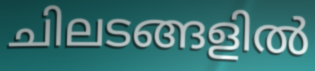
ചിലടങ്ങളിൽ